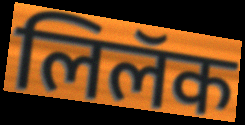
लिलॅक